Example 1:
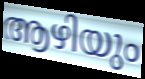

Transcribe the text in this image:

ആഴിയും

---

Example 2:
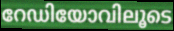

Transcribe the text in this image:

റേഡിയോവിലൂടെ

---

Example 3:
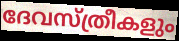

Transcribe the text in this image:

ദേവസ്ത്രീകളും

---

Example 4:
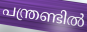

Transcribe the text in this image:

പന്ത്രണ്ടിൽ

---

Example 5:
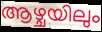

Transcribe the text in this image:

ആഴ്ചയിലും